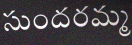
సుందరమ్మ